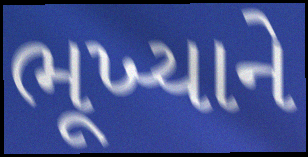
ભૂખ્યાને